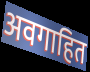
अवगाहित